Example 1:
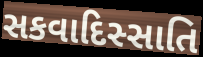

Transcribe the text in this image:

સકવાદિસ્સાતિ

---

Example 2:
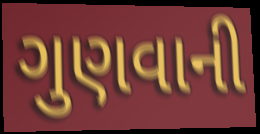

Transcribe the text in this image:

ગુણવાની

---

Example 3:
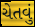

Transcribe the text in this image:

ચેતવું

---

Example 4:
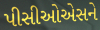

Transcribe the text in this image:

પીસીઓએસને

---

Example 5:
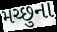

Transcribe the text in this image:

મચ્છુના